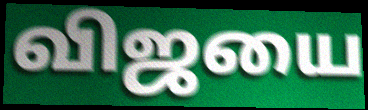
விஜயை